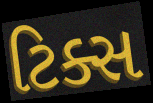
ટિક્સ